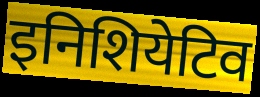
इनिशियेटिव